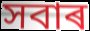
সবাৰ